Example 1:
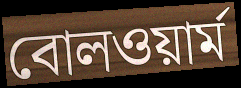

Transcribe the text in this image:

বোলওয়ার্ম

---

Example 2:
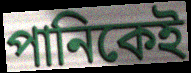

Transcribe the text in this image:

পানিকেই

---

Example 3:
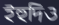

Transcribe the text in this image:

ইহুদিও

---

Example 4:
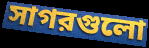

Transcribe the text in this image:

সাগরগুলো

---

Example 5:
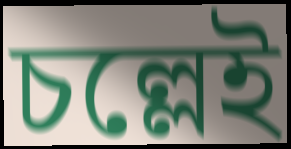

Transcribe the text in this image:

চল্লেই